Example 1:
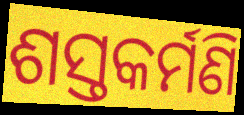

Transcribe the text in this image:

ଶସ୍ତକର୍ମଣି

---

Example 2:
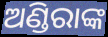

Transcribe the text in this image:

ଅଣ୍ଡିରାଙ୍କ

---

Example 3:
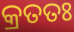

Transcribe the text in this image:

କ୍ରତତଃ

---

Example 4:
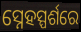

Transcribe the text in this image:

ସ୍ନେହସ୍ପର୍ଶରେ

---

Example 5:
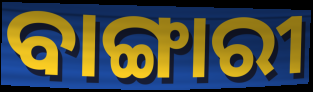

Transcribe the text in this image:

ବାଙ୍ଗାରୀ